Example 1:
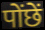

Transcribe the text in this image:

पोंछें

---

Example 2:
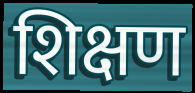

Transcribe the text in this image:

शिक्षण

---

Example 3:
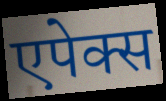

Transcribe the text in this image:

एपेक्स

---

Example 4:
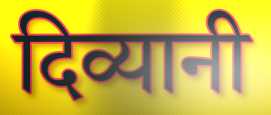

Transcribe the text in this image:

दिव्यानी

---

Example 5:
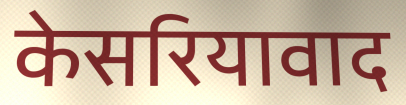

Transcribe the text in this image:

केसरियावाद